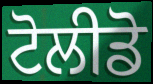
ਟੋਲੀਡੋ